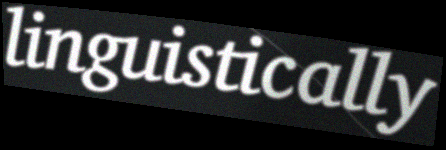
linguistically